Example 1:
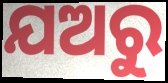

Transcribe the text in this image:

ଯଅରୁ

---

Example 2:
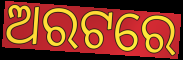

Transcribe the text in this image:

ଅରଟରେ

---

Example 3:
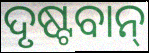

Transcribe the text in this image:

ଦୃଷ୍ଟବାନ୍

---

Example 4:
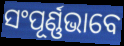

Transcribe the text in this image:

ସଂପୂର୍ଣ୍ଣଭାବେ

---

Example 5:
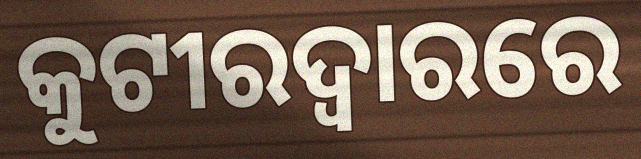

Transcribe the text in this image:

କୁଟୀରଦ୍ୱାରରେ